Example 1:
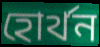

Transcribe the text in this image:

হোর্থন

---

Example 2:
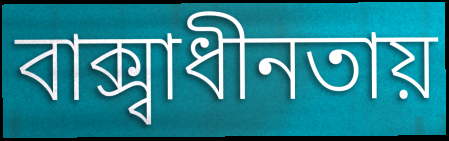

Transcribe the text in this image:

বাক্স্বাধীনতায়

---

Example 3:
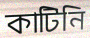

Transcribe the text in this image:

কাটিনি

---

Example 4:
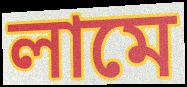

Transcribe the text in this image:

লামে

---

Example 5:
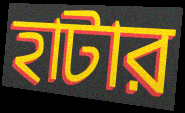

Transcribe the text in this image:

হাটার